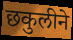
छकुलीने